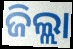
ଜିଲ୍ଲା